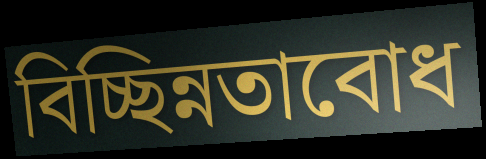
বিচ্ছিন্নতাবোধ